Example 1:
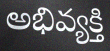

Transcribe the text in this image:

అభివ్యక్తి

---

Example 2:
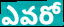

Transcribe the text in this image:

ఎవరో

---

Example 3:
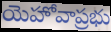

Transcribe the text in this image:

యెహోవాప్రభు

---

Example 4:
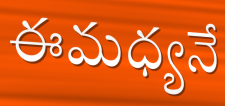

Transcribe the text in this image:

ఈమధ్యనే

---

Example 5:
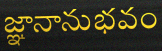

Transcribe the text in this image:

జ్ఞానానుభవం